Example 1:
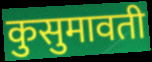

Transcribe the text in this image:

कुसुमावती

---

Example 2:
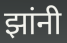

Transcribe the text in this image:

झांनी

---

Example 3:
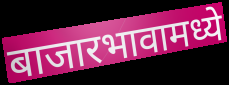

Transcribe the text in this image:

बाजारभावामध्ये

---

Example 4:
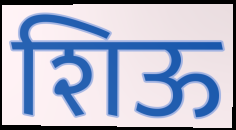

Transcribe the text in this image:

शिऊ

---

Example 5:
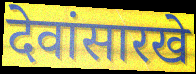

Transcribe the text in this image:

देवांसारखे